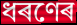
ধৰণেৰ